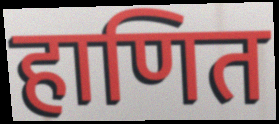
हाणित